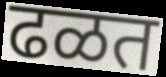
ढळत